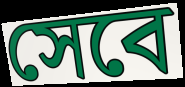
সেবে